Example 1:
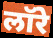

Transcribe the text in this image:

लॉरे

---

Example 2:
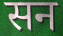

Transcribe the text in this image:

सन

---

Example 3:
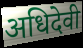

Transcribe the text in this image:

अधिदेवी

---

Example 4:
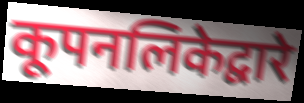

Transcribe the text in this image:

कूपनलिकेद्वारे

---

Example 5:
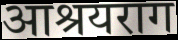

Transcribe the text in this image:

आश्रयराग